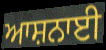
ਆਸ਼ਨਾਈ